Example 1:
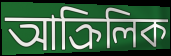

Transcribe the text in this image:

আক্ৰিলিক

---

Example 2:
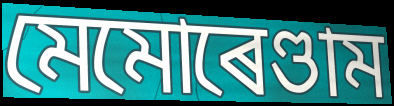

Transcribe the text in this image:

মেমোৰেণ্ডাম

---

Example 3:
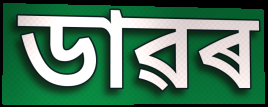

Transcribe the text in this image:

ডাৱৰ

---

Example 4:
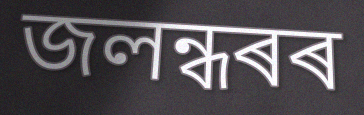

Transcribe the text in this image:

জলন্ধৰৰ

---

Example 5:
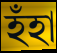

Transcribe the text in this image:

হঁহা